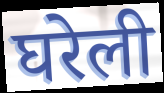
घरेली